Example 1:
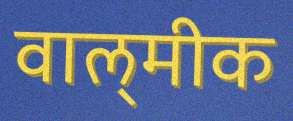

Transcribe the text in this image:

वाल्मीक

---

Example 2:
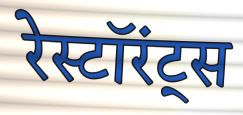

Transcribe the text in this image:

रेस्टॉरंट्‌स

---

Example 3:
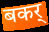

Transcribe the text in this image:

बकर्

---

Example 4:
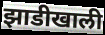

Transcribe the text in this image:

झाडीखाली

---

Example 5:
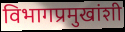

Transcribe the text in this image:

विभागप्रमुखांशी